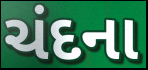
ચંદના